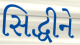
સિદ્ધીને